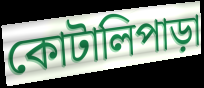
কোটালিপাড়া